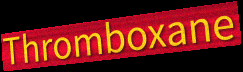
Thromboxane